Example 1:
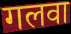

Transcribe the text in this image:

गलवा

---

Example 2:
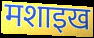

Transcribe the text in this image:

मशाइख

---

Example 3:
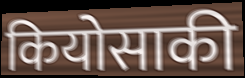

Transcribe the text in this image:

कियोसाकी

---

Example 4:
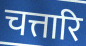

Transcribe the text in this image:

चत्तारि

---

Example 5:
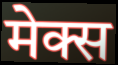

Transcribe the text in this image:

मेक्स